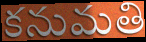
కనుమతి